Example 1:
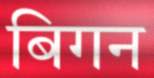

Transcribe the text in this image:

बिगन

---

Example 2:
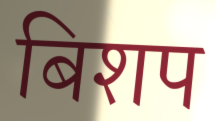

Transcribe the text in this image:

बिशप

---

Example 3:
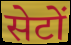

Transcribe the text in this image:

सेटों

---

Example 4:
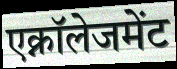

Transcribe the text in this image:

एक्नॉलेजमेंट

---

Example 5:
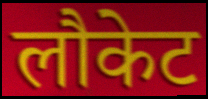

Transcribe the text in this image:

लौकेट